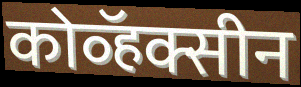
कोव्हॅक्सीन